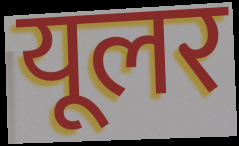
यूलर